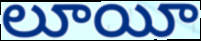
లూయీ